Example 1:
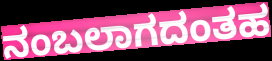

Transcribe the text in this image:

ನಂಬಲಾಗದಂತಹ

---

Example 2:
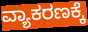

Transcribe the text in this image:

ವ್ಯಾಕರಣಕ್ಕೆ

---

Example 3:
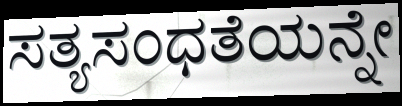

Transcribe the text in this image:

ಸತ್ಯಸಂಧತೆಯನ್ನೇ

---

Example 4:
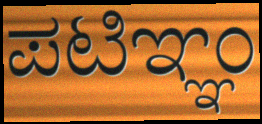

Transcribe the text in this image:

ಪಟಿಞ್ಞಂ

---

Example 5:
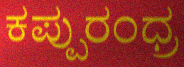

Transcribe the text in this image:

ಕಪ್ಪುರಂಧ್ರ